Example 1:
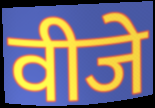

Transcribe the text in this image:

वीजे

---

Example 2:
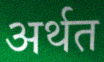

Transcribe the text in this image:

अर्थत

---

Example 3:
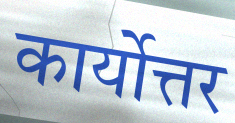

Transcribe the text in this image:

कार्योत्तर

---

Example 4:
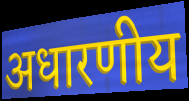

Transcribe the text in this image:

अधारणीय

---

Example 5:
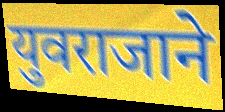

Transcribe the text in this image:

युवराजाने